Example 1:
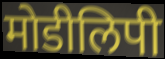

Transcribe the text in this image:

मोडीलिपी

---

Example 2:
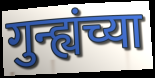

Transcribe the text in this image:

गुन्ह्यंच्या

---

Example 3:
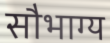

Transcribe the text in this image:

सौभाग्य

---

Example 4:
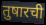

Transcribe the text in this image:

तुषारची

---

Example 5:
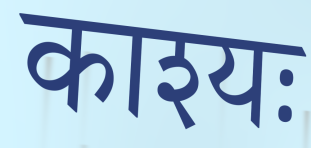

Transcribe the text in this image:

काश्यः